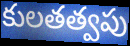
కులతత్వపు